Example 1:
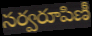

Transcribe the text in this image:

సర్వరూపిణీ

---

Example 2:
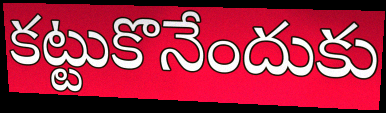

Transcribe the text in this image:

కట్టుకొనేందుకు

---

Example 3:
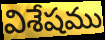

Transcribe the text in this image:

విశేషము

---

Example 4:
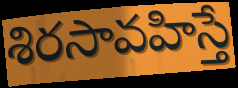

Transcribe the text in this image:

శిరసావహిస్తే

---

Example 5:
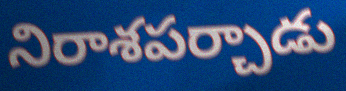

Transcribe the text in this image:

నిరాశపర్చాడు